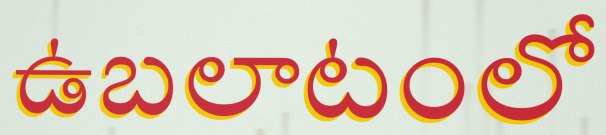
ఉబలాటంలో